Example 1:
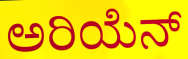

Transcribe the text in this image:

ಅರಿಯೆನ್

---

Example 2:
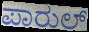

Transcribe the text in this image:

ಪಾರುಲ್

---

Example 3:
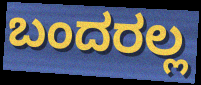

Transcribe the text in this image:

ಬಂದರಲ್ಲ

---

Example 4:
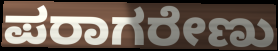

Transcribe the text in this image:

ಪರಾಗರೇಣು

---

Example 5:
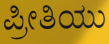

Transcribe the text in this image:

ಪ್ರೀತಿಯು